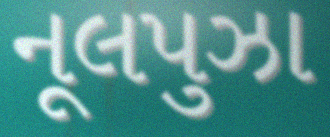
નૂલપુઝા